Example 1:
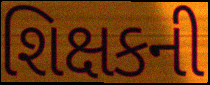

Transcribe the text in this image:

શિક્ષકની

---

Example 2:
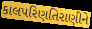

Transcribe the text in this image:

કાલપરિણતિરાણીને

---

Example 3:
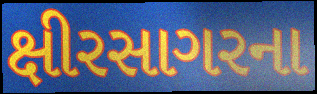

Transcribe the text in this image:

ક્ષીરસાગરના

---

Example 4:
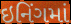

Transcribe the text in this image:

ઇનિંગમાં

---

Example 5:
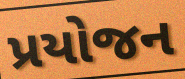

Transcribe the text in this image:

પ્રયોજન